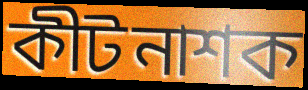
কীটনাশক